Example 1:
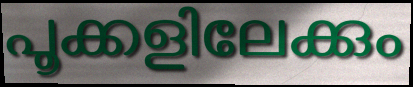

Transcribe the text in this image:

പൂക്കളിലേക്കും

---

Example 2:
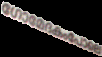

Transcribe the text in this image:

ഗോമേദകംപോലെ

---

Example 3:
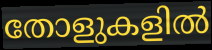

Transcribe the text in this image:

തോളുകളിൽ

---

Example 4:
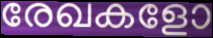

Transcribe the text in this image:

രേഖകളോ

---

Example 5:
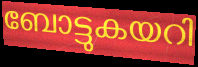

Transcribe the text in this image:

ബോട്ടുകയറി